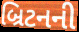
બ્રિટનની